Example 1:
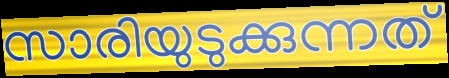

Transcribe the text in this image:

സാരിയുടുക്കുന്നത്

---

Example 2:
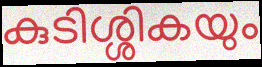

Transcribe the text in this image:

കുടിശ്ശികയും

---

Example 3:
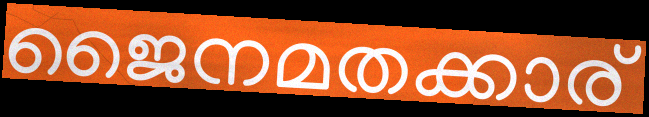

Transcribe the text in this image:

ജൈനമതക്കാര്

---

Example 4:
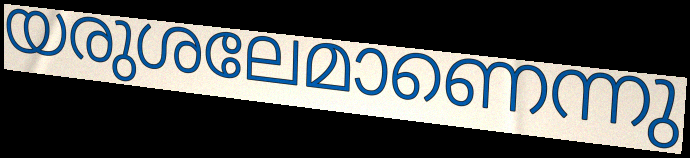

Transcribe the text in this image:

യരുശലേമാണെന്നു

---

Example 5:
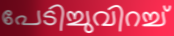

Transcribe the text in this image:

പേടിച്ചുവിറച്ച്